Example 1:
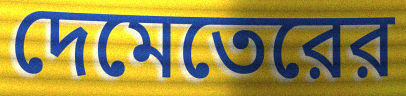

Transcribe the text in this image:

দেমেতেরের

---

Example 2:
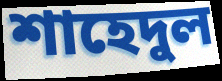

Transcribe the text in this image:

শাহেদুল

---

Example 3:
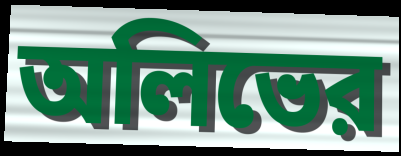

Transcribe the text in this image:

অলিভের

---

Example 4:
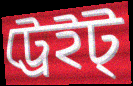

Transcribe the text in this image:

ট্রেইট্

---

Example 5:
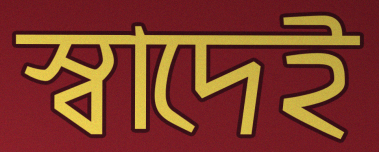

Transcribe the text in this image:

স্বাদেই